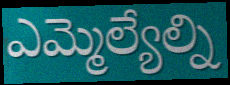
ఎమ్మెల్యేల్ని